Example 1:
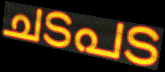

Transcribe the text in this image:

ചടപട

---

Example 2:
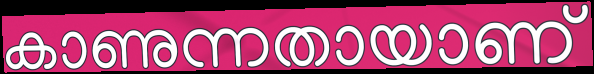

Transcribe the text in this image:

കാണുന്നതായാണ്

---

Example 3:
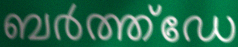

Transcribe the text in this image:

ബർത്ത്ഡേ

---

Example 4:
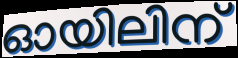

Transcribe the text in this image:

ഓയിലിന്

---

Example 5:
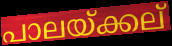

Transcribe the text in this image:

പാലയ്ക്കല്